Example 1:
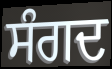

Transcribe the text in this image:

ਸੰਗਦ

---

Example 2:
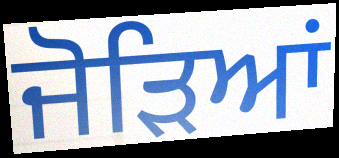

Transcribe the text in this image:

ਜੋੜਿਆਂ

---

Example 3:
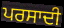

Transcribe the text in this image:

ਪਰਸਾਦੀ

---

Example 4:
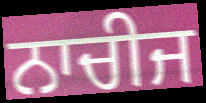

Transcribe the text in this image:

ਨਾਚੀਜ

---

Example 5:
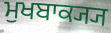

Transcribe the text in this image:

ਮੁਖਬਾਕ੍ਯ੍ਯ